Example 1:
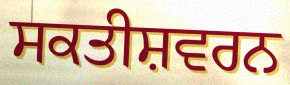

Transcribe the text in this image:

ਸਕਤੀਸ਼ਵਰਨ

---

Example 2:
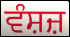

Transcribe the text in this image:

ਵੰਸ਼ਜ਼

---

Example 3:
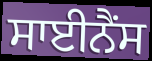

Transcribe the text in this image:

ਸਾਈਨੈਂਸ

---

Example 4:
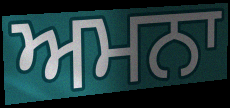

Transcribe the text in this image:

ਅਮਨਾ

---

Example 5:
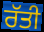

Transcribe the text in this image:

ਰੱਤੀ